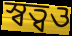
স্বত্বও